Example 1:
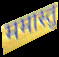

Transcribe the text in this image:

ममास्तु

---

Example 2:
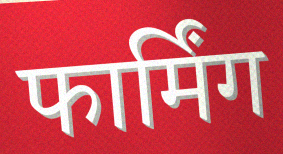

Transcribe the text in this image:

फार्मिंग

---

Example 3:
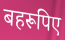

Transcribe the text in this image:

बहरूपिए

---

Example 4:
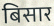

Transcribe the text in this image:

बिसार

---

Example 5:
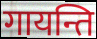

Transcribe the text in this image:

गायन्ति